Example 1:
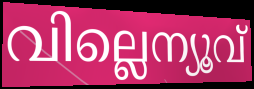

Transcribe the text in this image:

വില്ലെന്യൂവ്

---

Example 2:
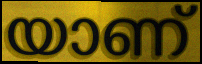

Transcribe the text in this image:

യാണ്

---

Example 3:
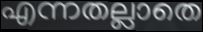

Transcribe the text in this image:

എന്നതല്ലാതെ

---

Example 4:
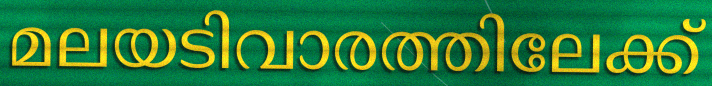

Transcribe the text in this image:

മലയടിവാരത്തിലേക്ക്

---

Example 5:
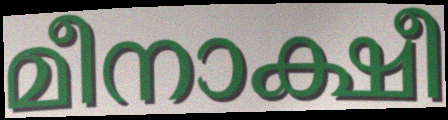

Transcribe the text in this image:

മീനാക്ഷീ